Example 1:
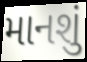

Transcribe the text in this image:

માનશું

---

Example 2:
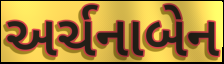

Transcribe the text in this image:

અર્ચનાબેન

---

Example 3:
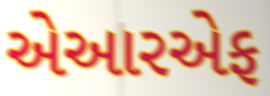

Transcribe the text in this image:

એઆરએફ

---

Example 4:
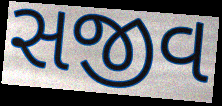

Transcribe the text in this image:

સજીવ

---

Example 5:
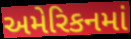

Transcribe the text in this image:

અમેરિકનમાં